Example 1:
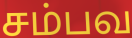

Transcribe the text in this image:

சம்பவ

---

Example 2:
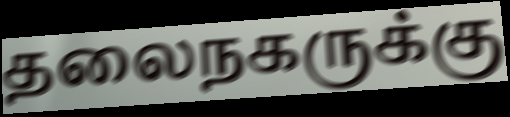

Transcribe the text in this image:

தலைநகருக்கு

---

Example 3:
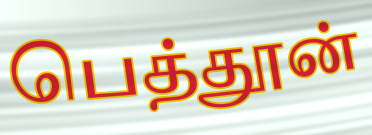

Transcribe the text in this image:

பெத்தூன்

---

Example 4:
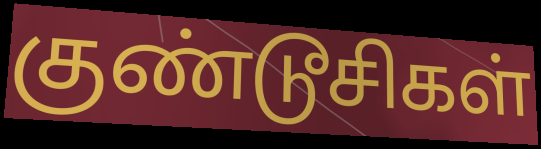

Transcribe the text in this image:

குண்டூசிகள்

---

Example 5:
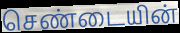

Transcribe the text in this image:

செண்டையின்